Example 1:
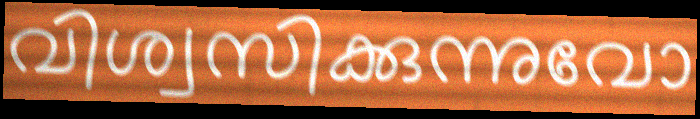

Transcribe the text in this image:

വിശ്വസിക്കുന്നുവോ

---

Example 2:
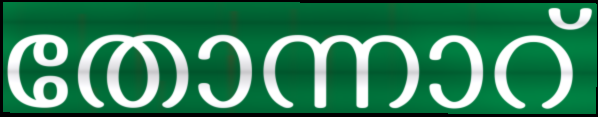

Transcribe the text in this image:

തോന്നാറ്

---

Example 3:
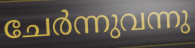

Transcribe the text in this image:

ചേർന്നുവന്നു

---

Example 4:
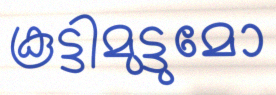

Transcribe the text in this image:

കൂട്ടിമുട്ടുമോ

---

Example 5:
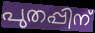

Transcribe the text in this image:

പുതപ്പിന്